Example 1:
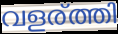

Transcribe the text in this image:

വളര്ത്തി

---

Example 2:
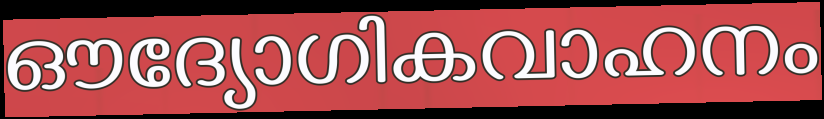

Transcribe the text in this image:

ഔദ്യോഗികവാഹനം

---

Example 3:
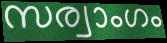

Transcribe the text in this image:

സര്വാംഗം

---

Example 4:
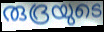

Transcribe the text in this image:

രുദ്രയുടെ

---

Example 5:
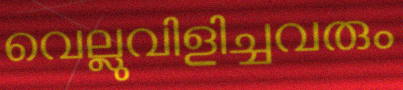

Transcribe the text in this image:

വെല്ലുവിളിച്ചവരും